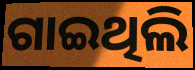
ଗାଇଥିଲି